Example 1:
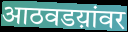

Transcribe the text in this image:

आठवडय़ांवर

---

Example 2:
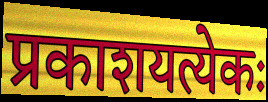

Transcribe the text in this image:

प्रकाशयत्येकः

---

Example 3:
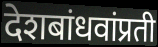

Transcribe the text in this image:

देशबांधवांप्रती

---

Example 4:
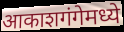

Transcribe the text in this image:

आकाशगंगेमध्ये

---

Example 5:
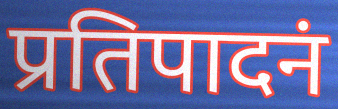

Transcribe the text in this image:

प्रतिपादनं